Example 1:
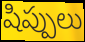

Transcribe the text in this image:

షిప్పులు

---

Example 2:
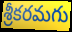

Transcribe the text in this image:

శ్రీకరమగు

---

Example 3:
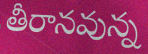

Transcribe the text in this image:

తీరానవున్న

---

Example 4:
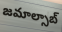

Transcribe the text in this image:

జమాల్సాబ్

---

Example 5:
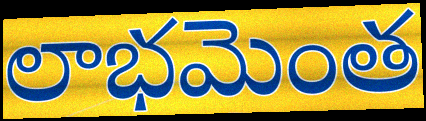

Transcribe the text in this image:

లాభమెంత